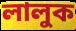
লালুক